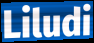
Liludi